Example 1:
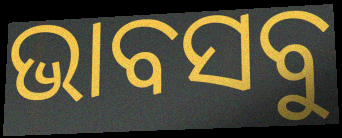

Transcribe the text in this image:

ଭାବସବୁ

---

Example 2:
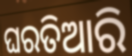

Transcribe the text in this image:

ଘରତିଆରି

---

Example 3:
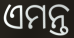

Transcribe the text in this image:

ଏମନ୍ତ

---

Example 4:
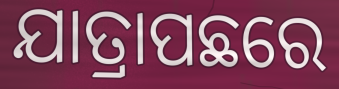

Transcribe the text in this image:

ଯାତ୍ରାପଛରେ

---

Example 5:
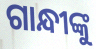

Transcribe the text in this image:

ଗାନ୍ଧୀଙ୍କୁ